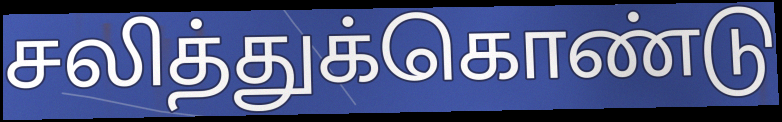
சலித்துக்கொண்டு